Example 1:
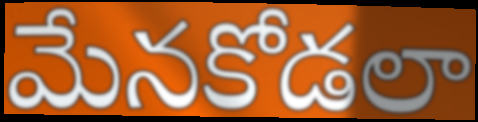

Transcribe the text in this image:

మేనకోడలా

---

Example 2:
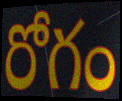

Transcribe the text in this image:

రోగం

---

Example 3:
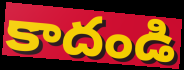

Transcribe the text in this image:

కాదండి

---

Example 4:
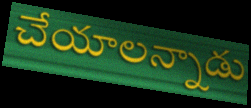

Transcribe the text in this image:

చేయాలన్నాడు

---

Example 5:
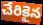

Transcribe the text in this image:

చేరికైన